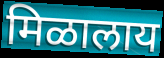
मिळालाय